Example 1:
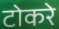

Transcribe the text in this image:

टोकरे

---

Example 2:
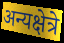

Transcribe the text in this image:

अन्यक्षेत्रे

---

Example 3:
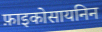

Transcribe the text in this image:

फ़ाइकोसायनिन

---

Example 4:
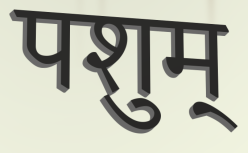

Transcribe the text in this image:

पशुम्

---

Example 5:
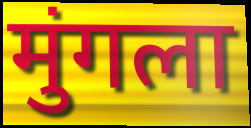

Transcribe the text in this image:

मुंगला